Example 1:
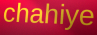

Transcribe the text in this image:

chahiye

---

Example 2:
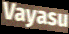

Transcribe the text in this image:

Vayasu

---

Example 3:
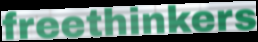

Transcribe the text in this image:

freethinkers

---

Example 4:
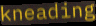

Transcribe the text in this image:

kneading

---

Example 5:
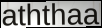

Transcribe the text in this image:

aththaa